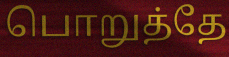
பொறுத்தே